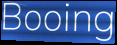
Booing